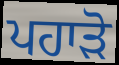
ਪਹਾੜੋ